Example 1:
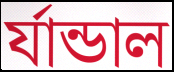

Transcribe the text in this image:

র্যান্ডাল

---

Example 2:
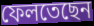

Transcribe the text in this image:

ফেলতেছেন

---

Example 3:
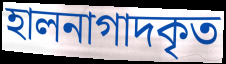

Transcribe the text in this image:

হালনাগাদকৃত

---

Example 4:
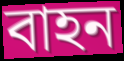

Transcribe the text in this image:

বাহন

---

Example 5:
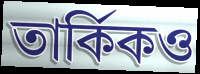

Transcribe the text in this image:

তার্কিকও